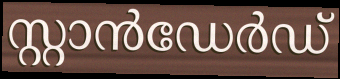
സ്റ്റാൻഡേർഡ്